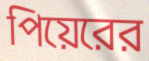
পিয়েরের